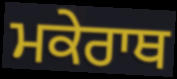
ਮਕੇਰਾਥ